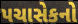
પચાસેકનો